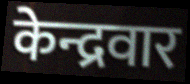
केन्‍द्रवार